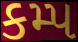
કમ્પ